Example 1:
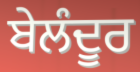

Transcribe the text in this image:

ਬੇਲੰਦੂਰ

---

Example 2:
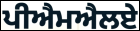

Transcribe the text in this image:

ਪੀਐਮਐਲਏ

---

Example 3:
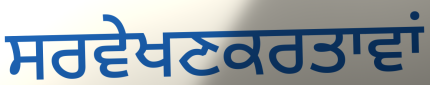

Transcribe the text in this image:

ਸਰਵੇਖਣਕਰਤਾਵਾਂ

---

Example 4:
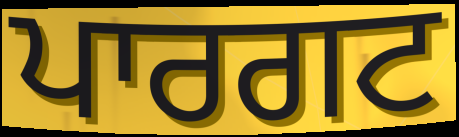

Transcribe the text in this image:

ਪਾਰਗਟ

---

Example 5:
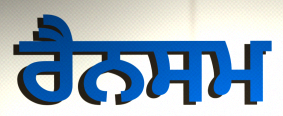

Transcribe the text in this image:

ਰੈਨਸਮ